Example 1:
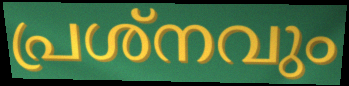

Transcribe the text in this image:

പ്രശ്നവും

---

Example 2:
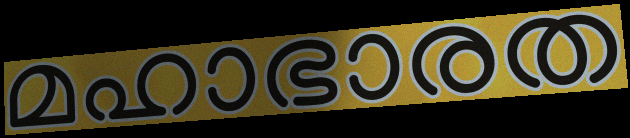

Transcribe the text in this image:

മഹാഭാരത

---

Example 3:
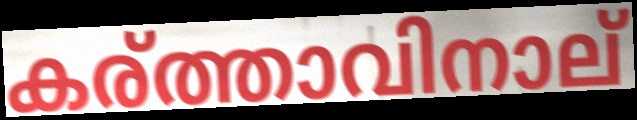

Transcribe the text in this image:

കര്ത്താവിനാല്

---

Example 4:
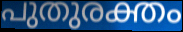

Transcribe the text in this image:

പുതുരക്തം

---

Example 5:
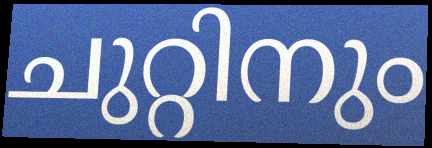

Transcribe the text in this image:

ചുറ്റിനും